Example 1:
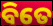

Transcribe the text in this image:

ବିତେ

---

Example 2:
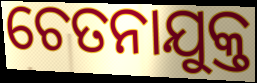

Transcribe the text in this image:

ଚେତନାଯୁକ୍ତ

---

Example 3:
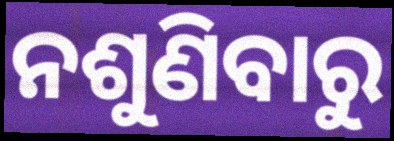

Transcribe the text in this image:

ନଶୁଣିବାରୁ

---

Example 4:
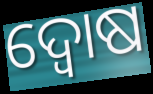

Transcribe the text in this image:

ଦ୍ୱୋଷ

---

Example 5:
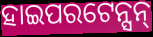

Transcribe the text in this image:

ହାଇପରଟେନ୍ସନ୍